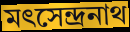
মৎসেন্দ্রনাথ